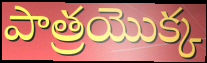
పాత్రయొక్క